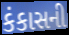
કંકાસની